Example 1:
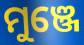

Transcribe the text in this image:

ମୁଞ୍ଜେ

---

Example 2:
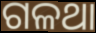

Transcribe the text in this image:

ଗଳଥା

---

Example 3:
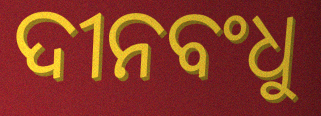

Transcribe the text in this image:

ଦୀନବଂଧୁ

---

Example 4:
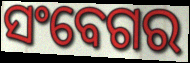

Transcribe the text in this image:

ସଂବେଗର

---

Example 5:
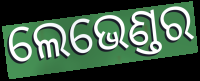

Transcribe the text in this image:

ଲେଭେଣ୍ଡର